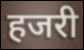
हजरी